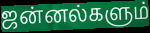
ஜன்னல்களும்